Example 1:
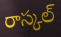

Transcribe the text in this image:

రాస్కల్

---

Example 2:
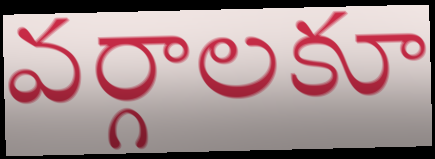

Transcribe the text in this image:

వర్గాలకూ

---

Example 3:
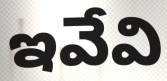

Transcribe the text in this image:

ఇవేవి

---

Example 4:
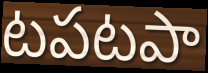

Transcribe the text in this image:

టపటపా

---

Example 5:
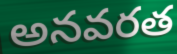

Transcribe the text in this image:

అనవరత